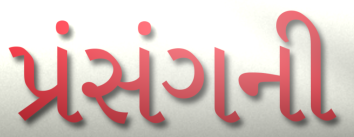
પ્રંસંગની